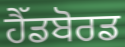
ਹੈੱਡਬੋਰਡ